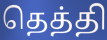
தெத்தி